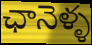
ఛానెళ్ళ